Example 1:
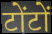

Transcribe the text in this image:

टोंटों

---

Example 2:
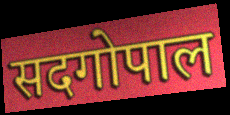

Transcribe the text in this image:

सदगोपाल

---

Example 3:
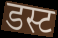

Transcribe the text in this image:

डस्ट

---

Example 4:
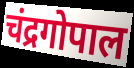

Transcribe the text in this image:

चंद्रगोपाल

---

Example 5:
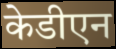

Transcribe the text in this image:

केडीएन